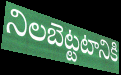
నిలబెట్టటానికి